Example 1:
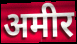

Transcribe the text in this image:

अमीर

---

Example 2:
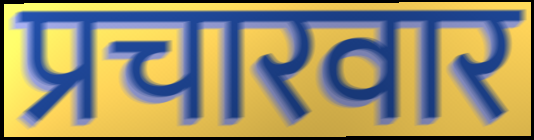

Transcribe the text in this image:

प्रचारवार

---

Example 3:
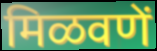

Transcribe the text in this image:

मिळवणें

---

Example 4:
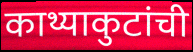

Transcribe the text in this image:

काथ्याकुटांची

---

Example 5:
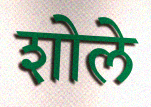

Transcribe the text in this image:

शोले